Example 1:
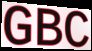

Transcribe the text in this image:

GBC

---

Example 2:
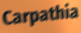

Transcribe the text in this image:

Carpathia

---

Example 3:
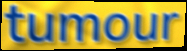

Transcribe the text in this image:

tumour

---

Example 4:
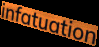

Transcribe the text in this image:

infatuation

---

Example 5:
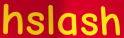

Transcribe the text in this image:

hslash